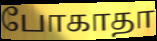
போகாதா